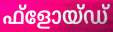
ഫ്ളോയ്ഡ്